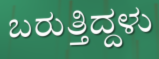
ಬರುತ್ತಿದ್ದಳು